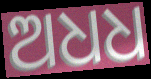
ଅଧଧ